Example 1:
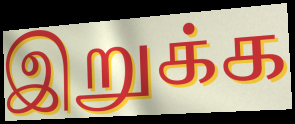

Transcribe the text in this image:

இறுக்க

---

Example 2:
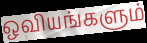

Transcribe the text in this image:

ஒவியங்களும்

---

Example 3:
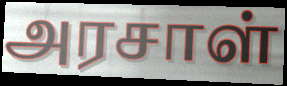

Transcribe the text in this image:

அரசாள்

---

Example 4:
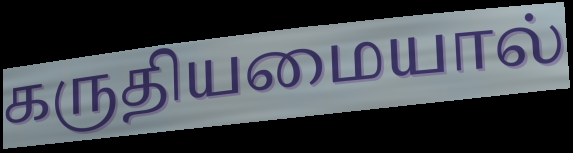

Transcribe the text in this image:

கருதியமையால்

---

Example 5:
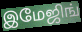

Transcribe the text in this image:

இமேஜிங்